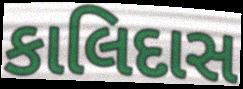
કાલિદાસ